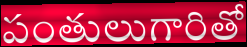
పంతులుగారితో